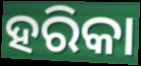
ହରିକା